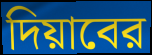
দিয়াবের